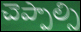
చెప్పాల్సి